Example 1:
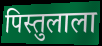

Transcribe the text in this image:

पिस्तुलाला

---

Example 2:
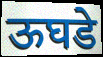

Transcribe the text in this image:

ऊघडे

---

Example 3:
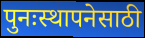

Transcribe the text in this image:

पुनःस्थापनेसाठी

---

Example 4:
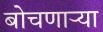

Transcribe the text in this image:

बोचणाऱ्या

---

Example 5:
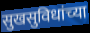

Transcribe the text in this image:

सुखसुविधांच्या